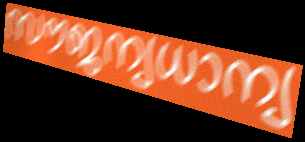
സൗജന്യധാന്യ